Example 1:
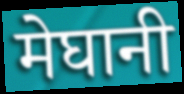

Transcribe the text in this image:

मेघानी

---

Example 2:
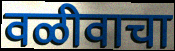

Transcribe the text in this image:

वळीवाचा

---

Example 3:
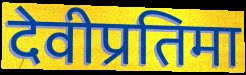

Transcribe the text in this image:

देवीप्रतिमा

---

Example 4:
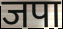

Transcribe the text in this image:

जपा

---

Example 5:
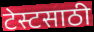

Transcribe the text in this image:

टेस्टसाठी